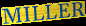
MILLER